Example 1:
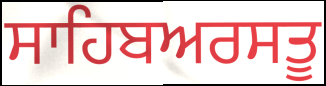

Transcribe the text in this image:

ਸਾਹਿਬਅਰਸਤੂ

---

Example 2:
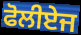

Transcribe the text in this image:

ਫੋਲੀਏਜ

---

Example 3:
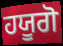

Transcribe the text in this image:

ਹਯੂਗੋ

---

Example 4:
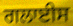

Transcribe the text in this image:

ਗਲਾਈਸ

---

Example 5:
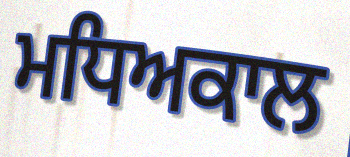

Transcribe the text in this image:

ਮਧਿਅਕਾਲ